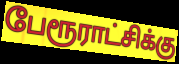
பேரூராட்சிக்கு